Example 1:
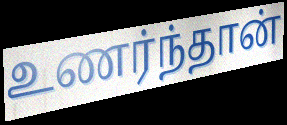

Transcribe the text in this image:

உணர்ந்தான்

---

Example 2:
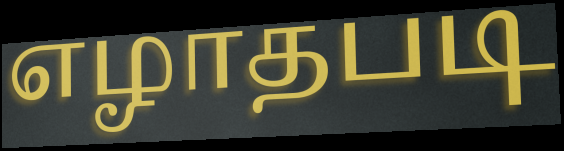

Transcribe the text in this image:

எழாதபடி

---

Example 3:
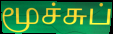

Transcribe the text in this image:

மூச்சுப்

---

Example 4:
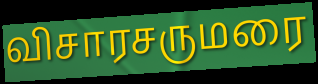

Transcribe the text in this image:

விசாரசருமரை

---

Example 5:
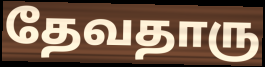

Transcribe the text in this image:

தேவதாரு